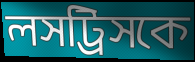
লসট্রিসকে